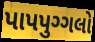
પાપપુગ્ગલો